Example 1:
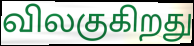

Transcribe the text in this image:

விலகுகிறது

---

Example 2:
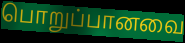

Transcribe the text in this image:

பொறுப்பானவை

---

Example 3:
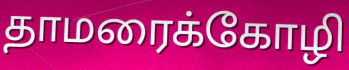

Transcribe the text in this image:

தாமரைக்கோழி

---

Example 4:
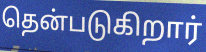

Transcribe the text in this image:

தென்படுகிறார்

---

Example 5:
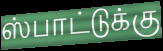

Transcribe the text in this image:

ஸ்பாட்டுக்கு